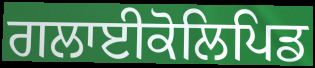
ਗਲਾਈਕੋਲਿਪਿਡ